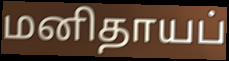
மனிதாயப்